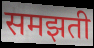
समझती